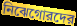
নিঝেগোরদের